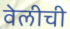
वेलीची